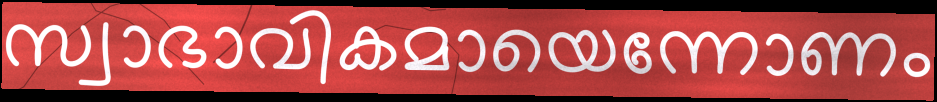
സ്വാഭാവികമായെന്നോണം